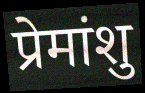
प्रेमांशु